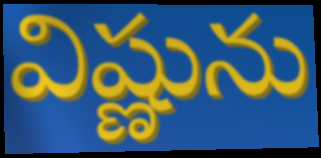
విష్ణును